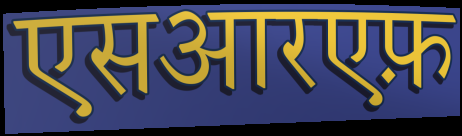
एसआरएफ़